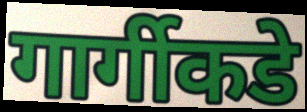
गार्गीकडे